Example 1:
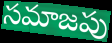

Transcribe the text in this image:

సమాజపు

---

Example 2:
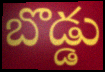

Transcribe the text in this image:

బొడ్డు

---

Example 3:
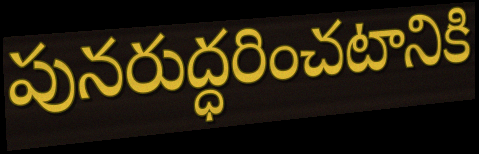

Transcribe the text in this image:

పునరుద్ధరించటానికి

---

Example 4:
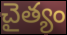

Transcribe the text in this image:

చైత్యం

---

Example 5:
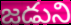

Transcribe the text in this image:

జడుని